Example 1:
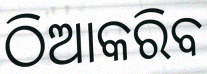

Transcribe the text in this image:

ଠିଆକରିବ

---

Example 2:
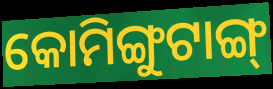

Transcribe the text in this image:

କୋମିଙ୍ଗୁଟାଙ୍ଗ୍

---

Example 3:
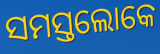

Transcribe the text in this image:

ସମସ୍ତଲୋକେ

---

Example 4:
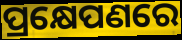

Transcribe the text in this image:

ପ୍ରକ୍ଷେପଣରେ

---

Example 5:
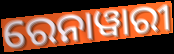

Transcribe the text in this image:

ରେନାୱାରୀ